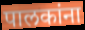
पालकांना